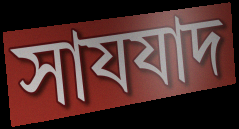
সাযযাদ